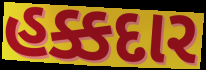
હક્કદાર